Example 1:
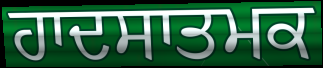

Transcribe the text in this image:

ਹਾਦਸਾਤਮਕ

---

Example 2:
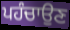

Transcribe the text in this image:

ਪਹੰਚਾਉਣ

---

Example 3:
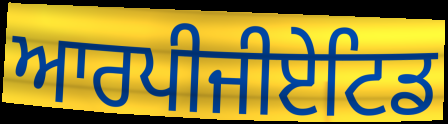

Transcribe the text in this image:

ਆਰਪੀਜੀਏਟਿਡ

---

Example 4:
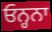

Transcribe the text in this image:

ਓਨ੍ਹਨਾ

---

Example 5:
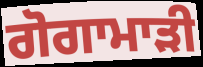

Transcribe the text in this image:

ਗੋਗਾਮਾੜੀ